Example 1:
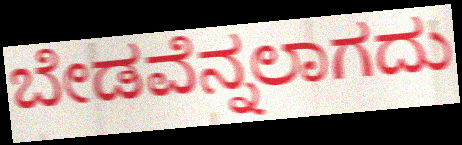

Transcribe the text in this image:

ಬೇಡವೆನ್ನಲಾಗದು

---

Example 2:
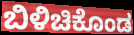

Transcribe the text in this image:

ಬಿಳಿಚಿಕೊಂಡ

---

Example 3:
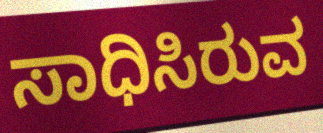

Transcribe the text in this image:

ಸಾಧಿಸಿರುವ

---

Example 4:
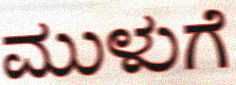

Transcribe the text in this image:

ಮುಳುಗೆ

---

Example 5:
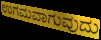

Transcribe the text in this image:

ಉಗಮವಾಗುವುದು